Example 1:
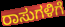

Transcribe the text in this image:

ರಾಸುಗಳಿಗೆ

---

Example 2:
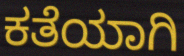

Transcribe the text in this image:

ಕತೆಯಾಗಿ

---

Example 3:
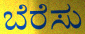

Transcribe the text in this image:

ಬೆರೆಸು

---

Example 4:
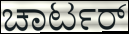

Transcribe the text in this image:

ಚಾರ್ಟರ್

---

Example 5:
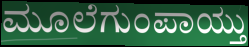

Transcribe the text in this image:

ಮೂಲೆಗುಂಪಾಯ್ತು